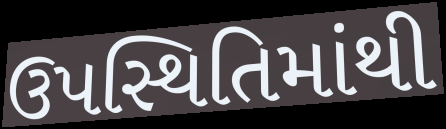
ઉપસ્થિતિમાંથી